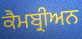
ਕੈਮਬ੍ਰੀਅਨ